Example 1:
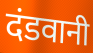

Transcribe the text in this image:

दंडवानी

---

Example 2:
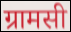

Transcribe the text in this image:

ग्रामसी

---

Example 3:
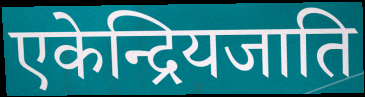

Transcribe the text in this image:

एकेन्द्रियजाति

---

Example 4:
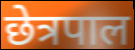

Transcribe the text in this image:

छेत्रपाल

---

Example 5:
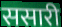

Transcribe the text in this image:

ससारी